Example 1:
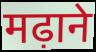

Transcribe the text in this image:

मढ़ाने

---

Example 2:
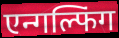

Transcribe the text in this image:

एन्गल्फिंग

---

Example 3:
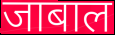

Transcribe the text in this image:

जाबाल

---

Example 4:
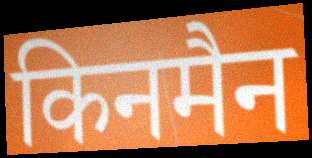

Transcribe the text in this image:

किनमैन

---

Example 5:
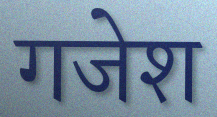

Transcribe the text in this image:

गजेश